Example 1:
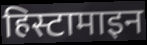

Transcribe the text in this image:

हिस्टामाइन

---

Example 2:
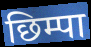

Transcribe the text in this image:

छिम्पा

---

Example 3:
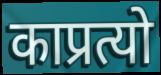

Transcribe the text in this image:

काप्रत्यो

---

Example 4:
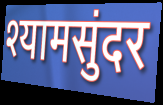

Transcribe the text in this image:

श्यामसुंदर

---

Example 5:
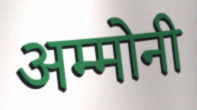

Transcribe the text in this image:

अम्मोनी